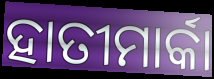
ହାତୀମାର୍କା